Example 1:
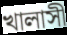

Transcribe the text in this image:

খালাসী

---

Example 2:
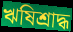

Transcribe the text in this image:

ঋষিশ্রাদ্ধ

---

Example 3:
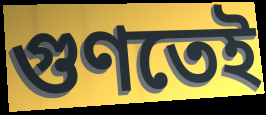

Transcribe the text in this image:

গুণতেই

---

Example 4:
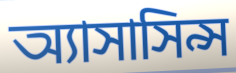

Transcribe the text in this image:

অ্যাসাসিন্স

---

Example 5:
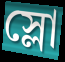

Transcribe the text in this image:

স্লো